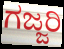
ಗಜ್ಜರಿ